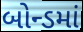
બોન્ડમાં